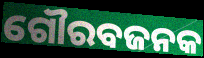
ଗୌରବଜନକ